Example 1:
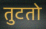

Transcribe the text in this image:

तुटतो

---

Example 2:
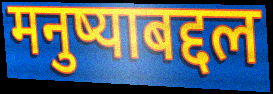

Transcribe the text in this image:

मनुष्याबद्दल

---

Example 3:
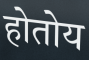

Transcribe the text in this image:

होतोय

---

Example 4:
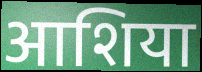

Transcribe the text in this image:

आशिया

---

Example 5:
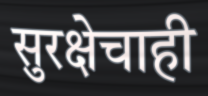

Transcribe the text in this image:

सुरक्षेचाही